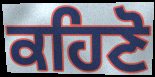
ਕਹਿਣੋ